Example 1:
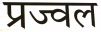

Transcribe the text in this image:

प्रज्वल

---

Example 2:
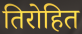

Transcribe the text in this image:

तिरोहित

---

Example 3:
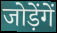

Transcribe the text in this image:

जोड़ेंगें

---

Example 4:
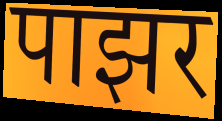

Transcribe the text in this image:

पाझर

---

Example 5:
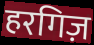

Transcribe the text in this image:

हरगिज़